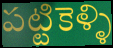
పట్టికెళ్ళి